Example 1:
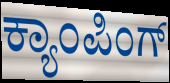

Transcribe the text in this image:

ಕ್ಯಾಂಪಿಂಗ್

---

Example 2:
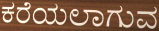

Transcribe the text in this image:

ಕರೆಯಲಾಗುವ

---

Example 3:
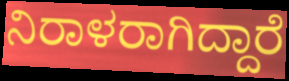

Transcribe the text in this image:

ನಿರಾಳರಾಗಿದ್ದಾರೆ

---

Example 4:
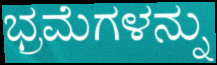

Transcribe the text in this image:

ಭ್ರಮೆಗಳನ್ನು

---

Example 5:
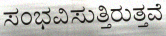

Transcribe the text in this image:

ಸಂಭವಿಸುತ್ತಿರುತ್ತವೆ